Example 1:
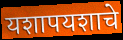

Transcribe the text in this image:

यशापयशाचे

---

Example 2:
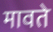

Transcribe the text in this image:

मावते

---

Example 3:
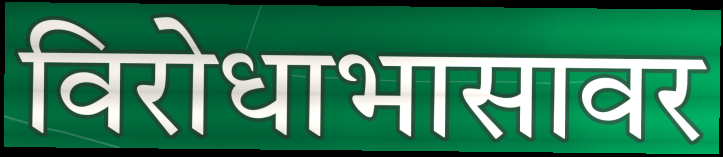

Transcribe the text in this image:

विरोधाभासावर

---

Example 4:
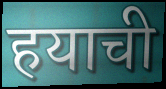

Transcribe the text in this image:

हयाची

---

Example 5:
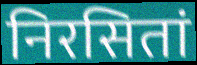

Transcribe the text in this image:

निरसितां